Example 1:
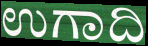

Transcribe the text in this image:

ಉಗಾದಿ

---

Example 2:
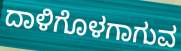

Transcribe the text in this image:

ದಾಳಿಗೊಳಗಾಗುವ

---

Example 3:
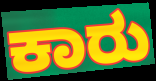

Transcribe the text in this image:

ಕಾರು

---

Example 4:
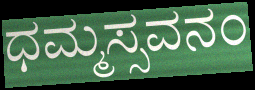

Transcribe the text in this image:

ಧಮ್ಮಸ್ಸವನಂ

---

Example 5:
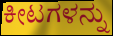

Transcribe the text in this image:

ಕೀಟಗಳನ್ನು